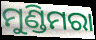
ମୁଣ୍ଡିମରା